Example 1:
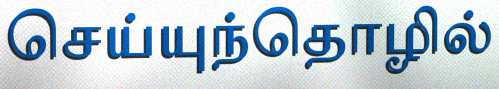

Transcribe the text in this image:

செய்யுந்தொழில்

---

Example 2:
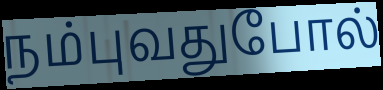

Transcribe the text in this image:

நம்புவதுபோல்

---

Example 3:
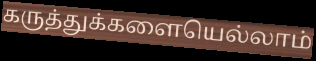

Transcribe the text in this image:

கருத்துக்களையெல்லாம்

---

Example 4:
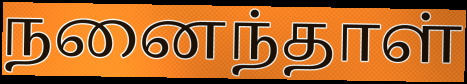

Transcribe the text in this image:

நனைந்தாள்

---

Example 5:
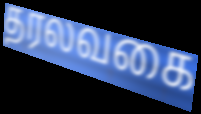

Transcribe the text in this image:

தரலவகை